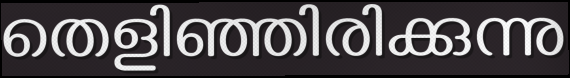
തെളിഞ്ഞിരിക്കുന്നു